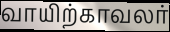
வாயிற்காவலர்